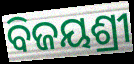
ବିଜୟଶ୍ରୀ